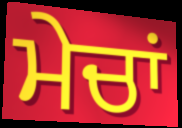
ਮੇਚਾਂ